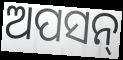
ଅପସନ୍